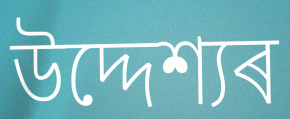
উদ্দেশ্যৰ